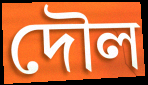
দৌল